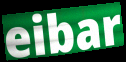
eibar